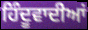
ਹਿੰਦੂਵਾਦੀਆਂ